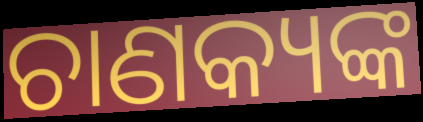
ଚାଣକ୍ୟଙ୍କ